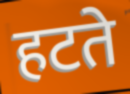
हटते